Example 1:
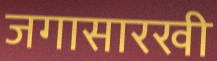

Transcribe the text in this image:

जगासारखी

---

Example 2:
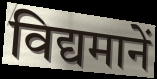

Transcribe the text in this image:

विद्यमानें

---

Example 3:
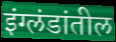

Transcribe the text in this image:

इंग्लंडांतील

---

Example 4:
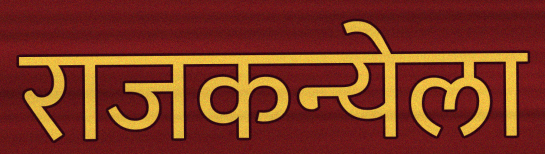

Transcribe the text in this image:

राजकन्येला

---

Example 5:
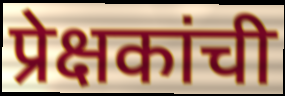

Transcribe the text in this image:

प्रेक्षकांची